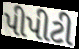
પીપીટી